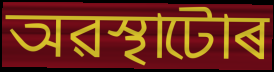
অৱস্থাটোৰ